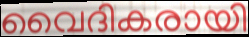
വൈദികരായി